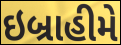
ઇબ્રાહીમે